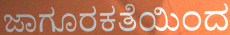
ಜಾಗೂರಕತೆಯಿಂದ